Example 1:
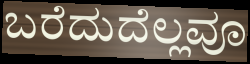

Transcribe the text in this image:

ಬರೆದುದೆಲ್ಲವೂ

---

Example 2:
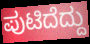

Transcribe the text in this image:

ಪುಟಿದೆದ್ದು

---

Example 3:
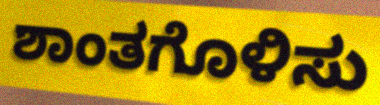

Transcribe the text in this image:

ಶಾಂತಗೊಳಿಸು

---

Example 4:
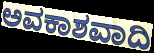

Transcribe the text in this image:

ಅವಕಾಶವಾದಿ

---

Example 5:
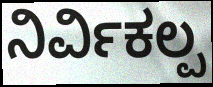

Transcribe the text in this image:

ನಿರ್ವಿಕಲ್ಪ